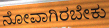
ನೋವಾಗಿರಬೇಕು